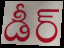
డీర్